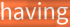
having